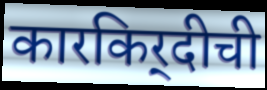
कारकिर्दीची